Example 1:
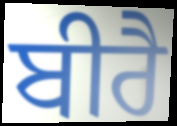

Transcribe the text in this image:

ਬੀਰੈ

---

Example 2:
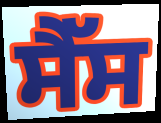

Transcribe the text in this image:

ਸੈੱਸ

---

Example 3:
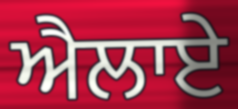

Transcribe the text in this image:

ਐਲਾਏ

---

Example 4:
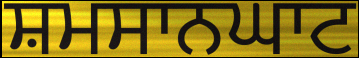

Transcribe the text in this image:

ਸ਼ਮਸਾਨਘਾਟ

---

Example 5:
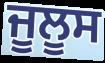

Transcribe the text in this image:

ਜੂਲੂਸ